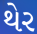
થેર